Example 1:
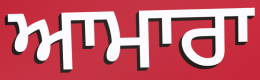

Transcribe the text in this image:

ਆਮਾਰਾ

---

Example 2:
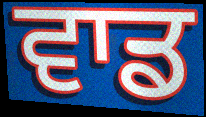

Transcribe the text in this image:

ਵਾਡ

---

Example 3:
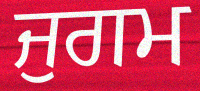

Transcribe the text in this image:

ਜੁਗਮ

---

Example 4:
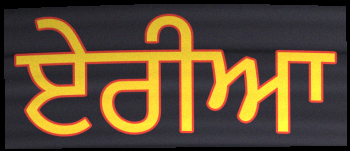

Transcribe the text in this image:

ਏਰੀਆ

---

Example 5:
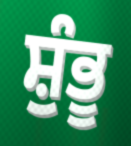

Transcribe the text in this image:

ਸ਼ੁੰਭੂ